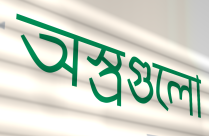
অস্ত্রগুলো